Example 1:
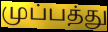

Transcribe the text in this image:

முப்பத்து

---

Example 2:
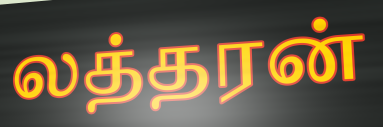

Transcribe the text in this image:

லத்தரன்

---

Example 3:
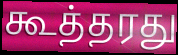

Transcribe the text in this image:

கூத்தரது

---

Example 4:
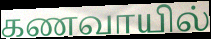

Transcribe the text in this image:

கணவாயில்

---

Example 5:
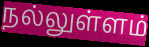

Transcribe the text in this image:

நல்லுள்ளம்